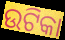
ଉଟିକା